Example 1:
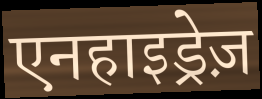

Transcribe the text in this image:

एनहाइड्रेज़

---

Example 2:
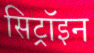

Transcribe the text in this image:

सिट्रॉइन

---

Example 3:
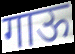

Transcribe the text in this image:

गाऊ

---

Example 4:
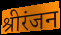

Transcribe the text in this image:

श्रीरंजन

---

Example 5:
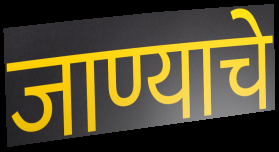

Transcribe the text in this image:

जाण्याचे